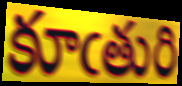
కూఁతురి